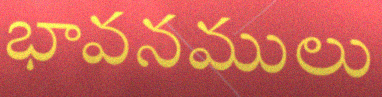
భావనములు